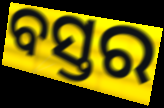
ବସ୍ତର